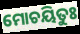
ମୋଚୟିତୁଃ